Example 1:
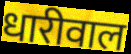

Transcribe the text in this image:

धारीवाल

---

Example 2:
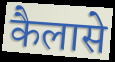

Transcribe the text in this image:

कैलासे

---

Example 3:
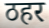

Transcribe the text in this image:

ठहर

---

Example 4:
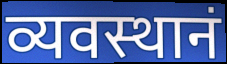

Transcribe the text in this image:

व्यवस्थानं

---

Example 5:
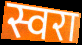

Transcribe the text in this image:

स्वरा